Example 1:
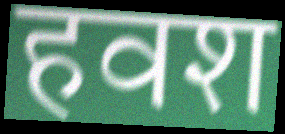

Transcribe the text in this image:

हवश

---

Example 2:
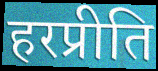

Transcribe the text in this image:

हरप्रीति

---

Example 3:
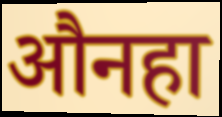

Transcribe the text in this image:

औनहा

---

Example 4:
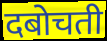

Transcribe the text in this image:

दबोचती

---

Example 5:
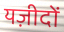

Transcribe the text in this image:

यज़ीदों